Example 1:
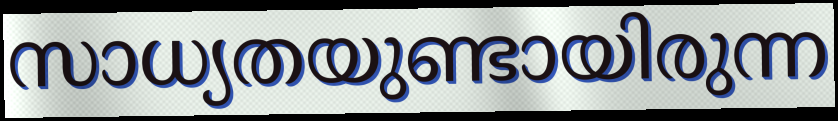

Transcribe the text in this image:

സാധ്യതയുണ്ടായിരുന്ന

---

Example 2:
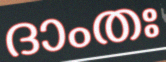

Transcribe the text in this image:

ദാംതഃ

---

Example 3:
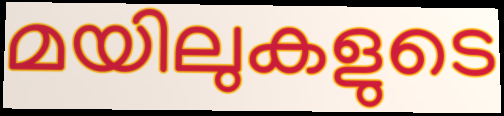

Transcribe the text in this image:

മയിലുകളുടെ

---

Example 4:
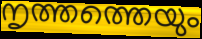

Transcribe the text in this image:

നൃത്തത്തെയും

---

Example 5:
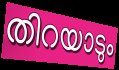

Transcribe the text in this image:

തിറയാടും